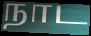
நாட